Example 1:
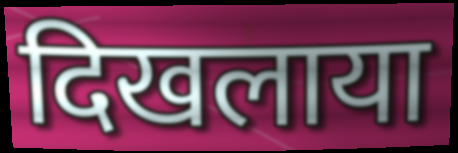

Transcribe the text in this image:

दिखलाया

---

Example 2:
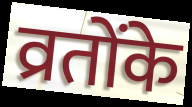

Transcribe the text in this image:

व्रतोंके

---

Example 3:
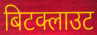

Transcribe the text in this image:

बिटक्लाउट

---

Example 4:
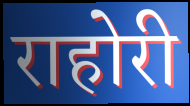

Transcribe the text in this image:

राहोरी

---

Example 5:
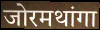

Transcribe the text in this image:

जोरमथांगा